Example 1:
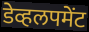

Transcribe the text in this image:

डेव्हलपमेंट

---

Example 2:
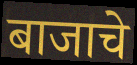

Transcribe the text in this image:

बाजाचे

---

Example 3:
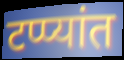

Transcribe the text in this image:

टप्प्यांत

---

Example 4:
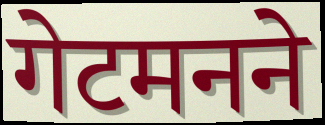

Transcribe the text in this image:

गेटमनने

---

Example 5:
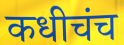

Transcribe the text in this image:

कधीचंच